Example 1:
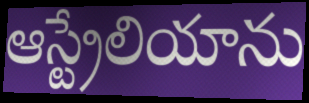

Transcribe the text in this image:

ఆస్ట్రేలియాను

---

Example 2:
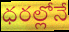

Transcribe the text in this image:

ధరల్లోనే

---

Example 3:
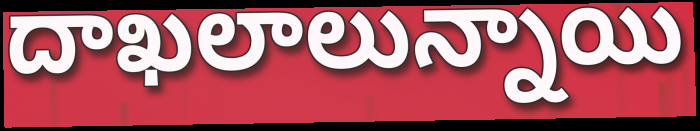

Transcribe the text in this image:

దాఖలాలున్నాయి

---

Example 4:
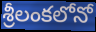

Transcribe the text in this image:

శ్రీలంకలోనో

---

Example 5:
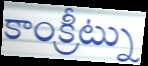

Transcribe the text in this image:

కాంక్రీట్ను